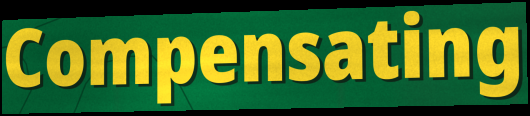
Compensating